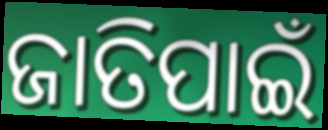
ଜାତିପାଇଁ